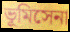
ভূমিসেনা